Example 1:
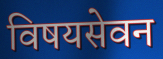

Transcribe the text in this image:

विषयसेवन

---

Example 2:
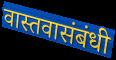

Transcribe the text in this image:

वास्तवासंबंधी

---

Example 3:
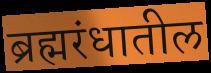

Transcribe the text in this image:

ब्रह्मरंधातील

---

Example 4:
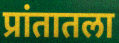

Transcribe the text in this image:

प्रांतातला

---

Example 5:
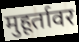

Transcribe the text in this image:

मुहूर्तावर